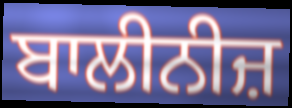
ਬਾਲੀਨੀਜ਼